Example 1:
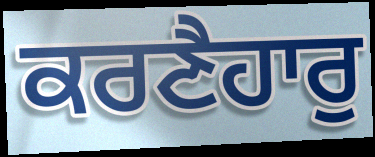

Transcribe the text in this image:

ਕਰਣੈਹਾਰੁ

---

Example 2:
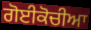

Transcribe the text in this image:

ਗੋਈਕੋਚੀਆ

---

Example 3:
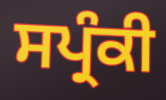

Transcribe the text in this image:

ਸਪ੍ਰੰਕੀ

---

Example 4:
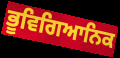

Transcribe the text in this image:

ਭੂਵਿਗਿਆਨਿਕ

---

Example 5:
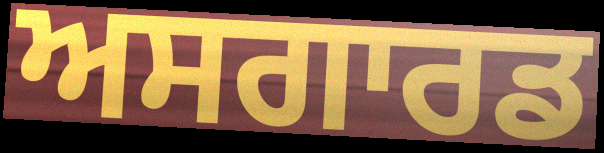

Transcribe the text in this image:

ਅਸਗਾਰਡ